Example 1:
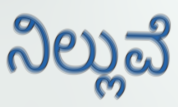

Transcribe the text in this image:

ನಿಲ್ಲುವೆ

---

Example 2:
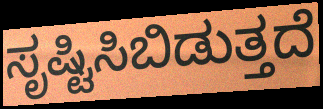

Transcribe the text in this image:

ಸೃಷ್ಟಿಸಿಬಿಡುತ್ತದೆ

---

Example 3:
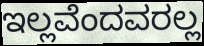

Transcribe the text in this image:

ಇಲ್ಲವೆಂದವರಲ್ಲ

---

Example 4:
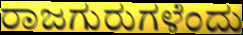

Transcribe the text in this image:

ರಾಜಗುರುಗಳೆಂದು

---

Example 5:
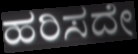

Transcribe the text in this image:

ಹರಿಸದೇ